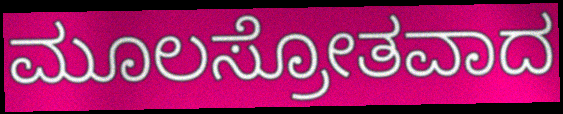
ಮೂಲಸ್ರೋತವಾದ